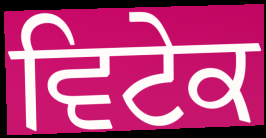
ਵਿਟੇਕ